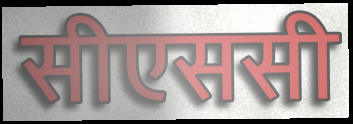
सीएससी